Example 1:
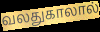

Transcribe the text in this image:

வலதுகாலால்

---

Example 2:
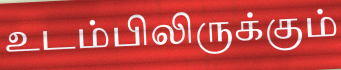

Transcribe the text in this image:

உடம்பிலிருக்கும்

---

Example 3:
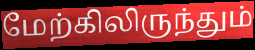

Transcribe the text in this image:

மேற்கிலிருந்தும்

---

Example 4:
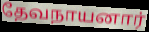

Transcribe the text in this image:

தேவநாயனார்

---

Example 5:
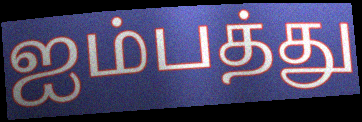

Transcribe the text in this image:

ஐம்பத்து